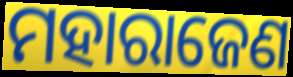
ମହାରାଜେଣ